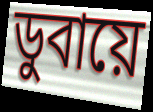
ডুবায়ে